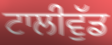
ਟਾਲੀਵੁੱਡ